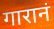
गारानं